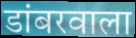
डांबरवाला